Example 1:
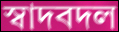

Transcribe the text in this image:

স্বাদবদল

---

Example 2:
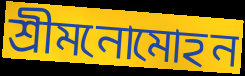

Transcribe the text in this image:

শ্রীমনোমোহন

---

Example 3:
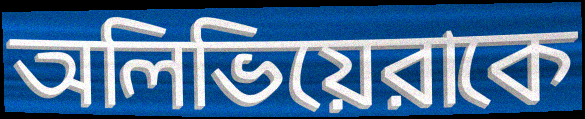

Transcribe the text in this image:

অলিভিয়েরাকে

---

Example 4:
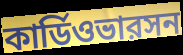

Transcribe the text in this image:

কার্ডিওভারসন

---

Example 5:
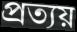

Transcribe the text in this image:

প্রত্যয়